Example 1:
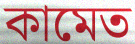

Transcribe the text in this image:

কামেত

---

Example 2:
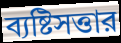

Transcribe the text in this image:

ব্যষ্টিসত্তার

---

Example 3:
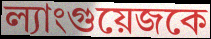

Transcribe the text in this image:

ল্যাংগুয়েজকে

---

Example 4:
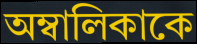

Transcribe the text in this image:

অম্বালিকাকে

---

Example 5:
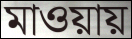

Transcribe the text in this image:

মাওয়ায়